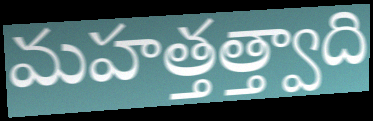
మహత్తత్త్వాది